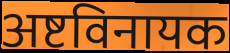
अष्टविनायक